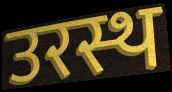
उरस्थ